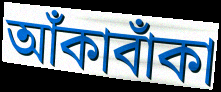
আঁকাবাঁকা